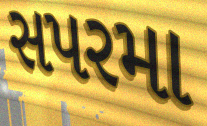
સપરમા